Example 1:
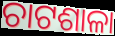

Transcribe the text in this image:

ଚାଟଶାଳା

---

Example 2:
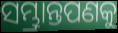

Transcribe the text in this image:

ସମ୍ଭ୍ରାନ୍ତପଣକୁ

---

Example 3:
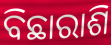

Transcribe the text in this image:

ବିଛାରାଶି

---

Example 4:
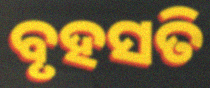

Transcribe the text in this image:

ବୃହସତି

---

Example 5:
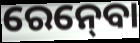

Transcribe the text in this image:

ରେନ୍‍ବୋ